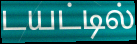
டயட்டில்